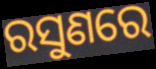
ରସୁଣରେ